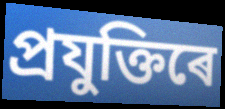
প্ৰযুক্তিৰে